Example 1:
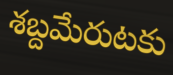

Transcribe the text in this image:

శబ్దమేరుటకు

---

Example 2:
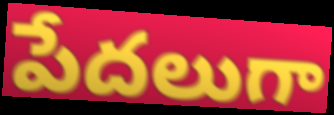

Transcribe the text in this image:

పేదలుగా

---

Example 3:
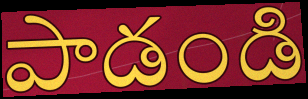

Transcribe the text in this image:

పాడండి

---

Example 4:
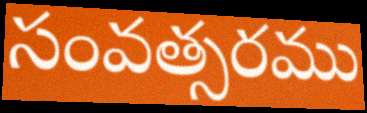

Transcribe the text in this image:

సంవత్సరము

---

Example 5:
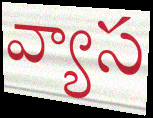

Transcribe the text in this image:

వ్యాస